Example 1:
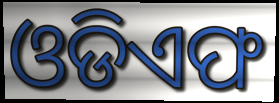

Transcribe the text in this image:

ଓଡିଏଫ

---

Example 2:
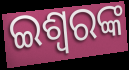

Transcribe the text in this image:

ଇଶ୍ୱରଙ୍କ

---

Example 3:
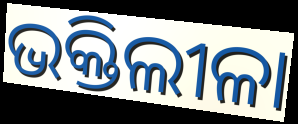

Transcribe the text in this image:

ଭକ୍ତିଲୀଳା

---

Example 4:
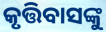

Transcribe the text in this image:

କୃତ୍ତିବାସଙ୍କୁ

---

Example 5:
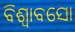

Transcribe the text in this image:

ବିଶ୍ୱାବସୋ